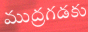
ముద్రగడకు